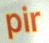
pir